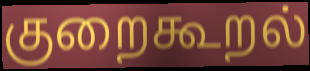
குறைகூறல்